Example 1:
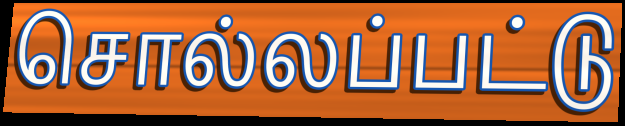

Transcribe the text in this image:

சொல்லப்பட்டு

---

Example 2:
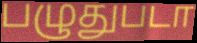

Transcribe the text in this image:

பழுதுபடா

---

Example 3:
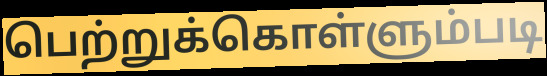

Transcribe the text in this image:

பெற்றுக்கொள்ளும்படி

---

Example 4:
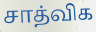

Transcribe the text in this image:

சாத்விக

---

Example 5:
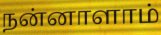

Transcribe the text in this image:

நன்னாளாம்